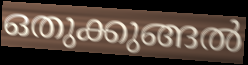
ഒതുക്കുങ്ങൽ